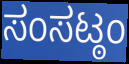
ಸಂಸಟ್ಠಂ